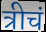
त्रीचं